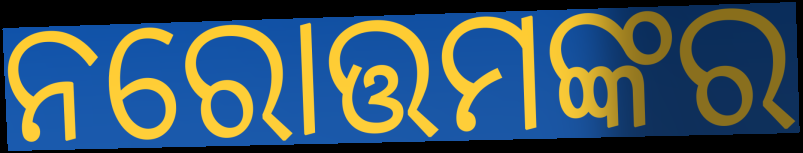
ନରୋତ୍ତମଙ୍କର